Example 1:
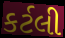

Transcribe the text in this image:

કર્ટલી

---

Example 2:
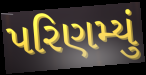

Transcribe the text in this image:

પરિણમ્યું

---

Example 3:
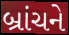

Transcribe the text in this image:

બ્રાંચને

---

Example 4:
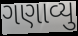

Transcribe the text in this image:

ગણાવ્યુ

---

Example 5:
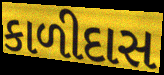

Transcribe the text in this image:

કાળીદાસ